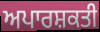
ਅਪਾਰਸ਼ਕਤੀ